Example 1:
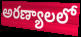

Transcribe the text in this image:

అరణ్యాలలో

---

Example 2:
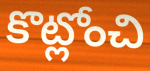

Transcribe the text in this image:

కొట్లోంచి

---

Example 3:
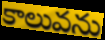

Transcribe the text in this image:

కాలువను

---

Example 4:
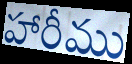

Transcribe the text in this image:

హారీము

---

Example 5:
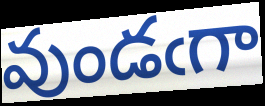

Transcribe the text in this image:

వుండఁగా